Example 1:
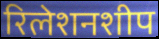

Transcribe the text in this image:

रिलेशनशीप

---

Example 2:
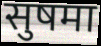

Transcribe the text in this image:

सुषमा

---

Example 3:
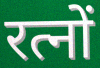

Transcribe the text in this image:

रत्नों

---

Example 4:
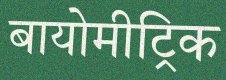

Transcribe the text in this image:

बायोमीट्रिक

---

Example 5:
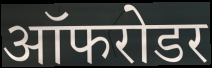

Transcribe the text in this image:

ऑफरोडर